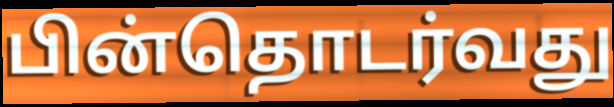
பின்தொடர்வது